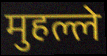
मुहल्ले